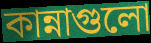
কান্নাগুলো